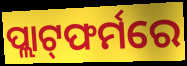
ପ୍ଲାଟ୍‌ଫର୍ମରେ